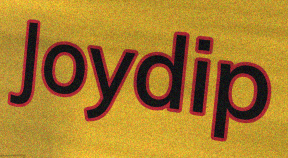
Joydip